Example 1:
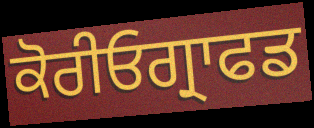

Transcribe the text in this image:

ਕੋਰੀਓਗ੍ਰਾਫਡ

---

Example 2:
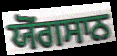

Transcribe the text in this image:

ਯੋਂਗਸਾਨ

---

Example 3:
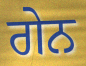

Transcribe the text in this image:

ਗੇਨ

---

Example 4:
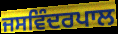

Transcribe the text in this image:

ਜਸਵਿੰਦਰਪਾਲ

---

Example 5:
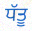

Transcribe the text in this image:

ਧੱਤੂ